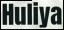
Huliya